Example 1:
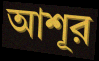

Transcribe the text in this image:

আশূর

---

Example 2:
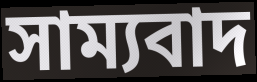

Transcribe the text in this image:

সাম্যবাদ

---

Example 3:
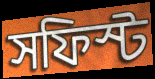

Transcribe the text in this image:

সফিস্ট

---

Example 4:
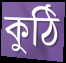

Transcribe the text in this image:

কুঠি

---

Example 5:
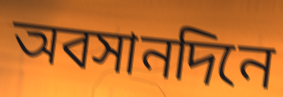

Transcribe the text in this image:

অবসানদিনে